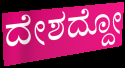
ದೇಶದ್ದೋ